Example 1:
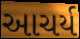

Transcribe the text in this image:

આચર્ય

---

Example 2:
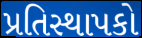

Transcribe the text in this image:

પ્રતિસ્થાપકો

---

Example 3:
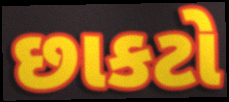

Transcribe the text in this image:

છાકટો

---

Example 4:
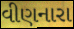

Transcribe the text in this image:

વીણનારા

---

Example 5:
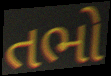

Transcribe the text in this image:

તભો